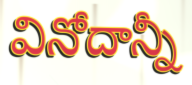
వినోదాన్నీ